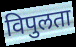
विपुलता